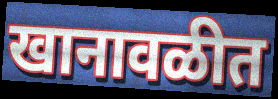
खानावळीत